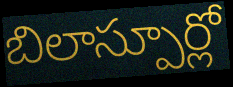
బిలాస్పూర్లో